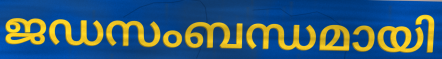
ജഡസംബന്ധമായി